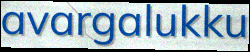
avargalukku